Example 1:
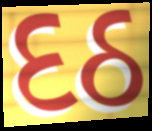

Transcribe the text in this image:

દઠ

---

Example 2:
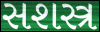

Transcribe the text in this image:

સશસ્ત્ર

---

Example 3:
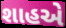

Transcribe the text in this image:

શાહએ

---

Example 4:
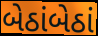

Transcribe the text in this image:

બેઠાંબેઠાં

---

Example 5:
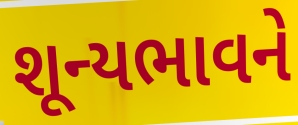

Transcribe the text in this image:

શૂન્યભાવને